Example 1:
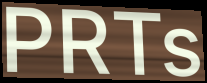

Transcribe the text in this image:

PRTs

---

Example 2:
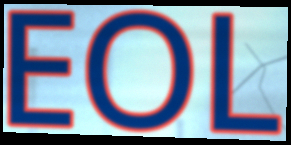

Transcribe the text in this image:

EOL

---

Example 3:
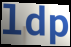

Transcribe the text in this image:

ldp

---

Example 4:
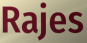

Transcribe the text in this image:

Rajes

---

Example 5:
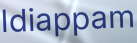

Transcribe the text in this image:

Idiappam